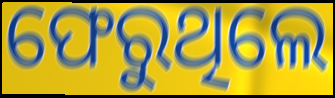
ଫେରୁଥିଲେ